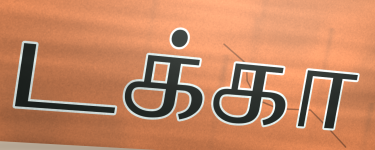
டக்கா